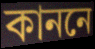
কাননে